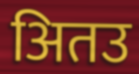
अितउ